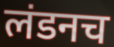
लंडनच